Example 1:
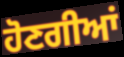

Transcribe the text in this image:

ਹੋਣਗੀਆਂ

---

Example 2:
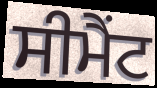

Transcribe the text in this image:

ਸੀਮੈੰਟ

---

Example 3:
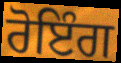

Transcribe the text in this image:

ਰੋਇੰਗ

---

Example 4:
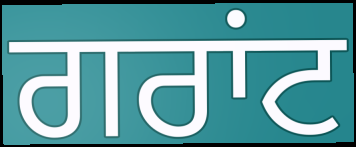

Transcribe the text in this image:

ਗਰਾਂਟ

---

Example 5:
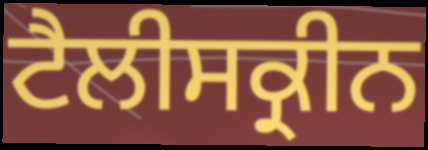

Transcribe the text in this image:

ਟੈਲੀਸਕ੍ਰੀਨ